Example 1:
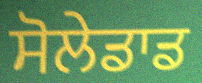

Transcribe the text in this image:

ਸੋਲੇਡਾਡ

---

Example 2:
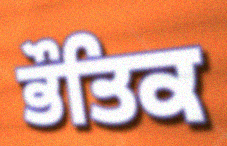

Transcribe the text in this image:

ਭੌਤਿਕ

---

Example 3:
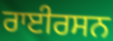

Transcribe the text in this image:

ਰਾਈਰਸਨ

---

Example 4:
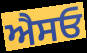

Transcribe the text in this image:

ਐਸਓ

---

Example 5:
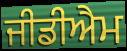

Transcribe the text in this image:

ਜੀਡੀਐਮ